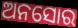
ଅନସୋର